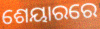
ଶେୟାରରେ